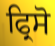
ਫ੍ਰਿਸੋ